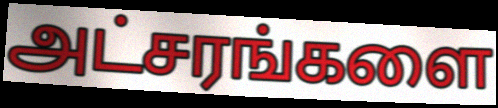
அட்சரங்களை